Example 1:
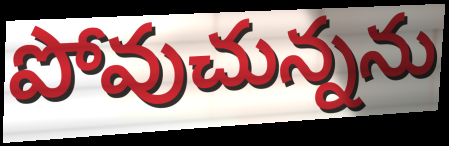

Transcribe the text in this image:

పోవుచున్నను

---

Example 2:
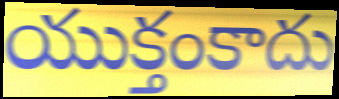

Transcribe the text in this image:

యుక్తంకాదు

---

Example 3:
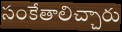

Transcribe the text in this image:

సంకేతాలిచ్చారు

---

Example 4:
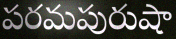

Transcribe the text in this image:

పరమపురుషా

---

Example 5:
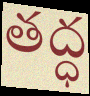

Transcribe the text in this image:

తద్ధ